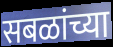
सबळांच्या